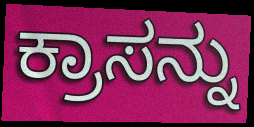
ಕ್ರಾಸನ್ನು